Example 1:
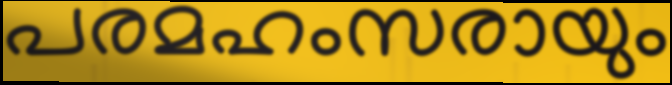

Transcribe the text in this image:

പരമഹംസരായും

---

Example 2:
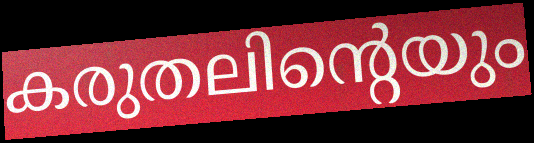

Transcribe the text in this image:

കരുതലിന്റെയും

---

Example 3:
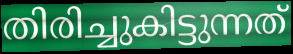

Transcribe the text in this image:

തിരിച്ചുകിട്ടുന്നത്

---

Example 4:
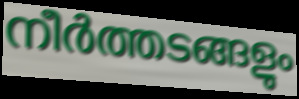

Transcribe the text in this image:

നീർത്തടങ്ങളും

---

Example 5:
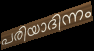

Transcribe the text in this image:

പരിയാദിന്നം